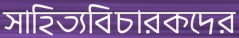
সাহিত্যবিচারকদের